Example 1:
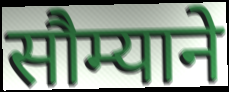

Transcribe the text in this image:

सौम्याने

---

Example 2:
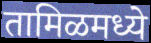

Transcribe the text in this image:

तामिळमध्ये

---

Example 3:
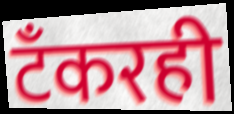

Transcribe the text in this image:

टँकरही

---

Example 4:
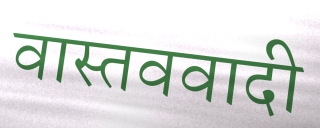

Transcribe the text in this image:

वास्तववादी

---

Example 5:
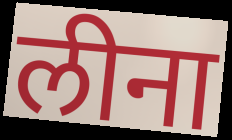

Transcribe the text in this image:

लीना